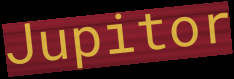
Jupitor